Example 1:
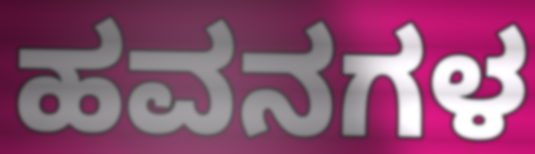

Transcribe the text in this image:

ಹವನಗಳ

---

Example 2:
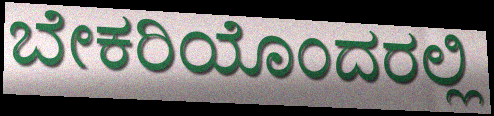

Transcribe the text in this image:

ಬೇಕರಿಯೊಂದರಲ್ಲಿ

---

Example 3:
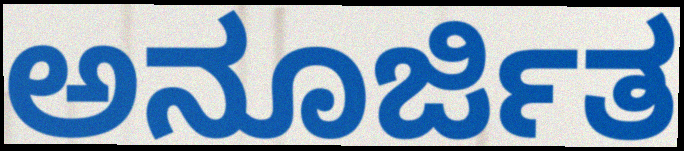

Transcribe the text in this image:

ಅನೂರ್ಜಿತ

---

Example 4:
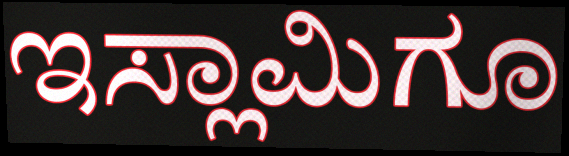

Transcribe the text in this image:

ಇಸ್ಲಾಮಿಗೂ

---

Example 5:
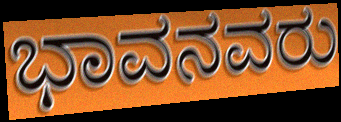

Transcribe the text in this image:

ಭಾವನವರು